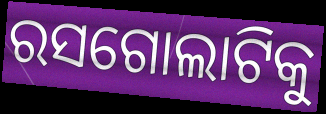
ରସଗୋଲାଟିକୁ